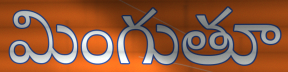
మింగుతూ